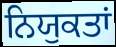
ਨਿਯੁਕਤਾਂ